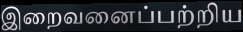
இறைவனைப்பற்றிய